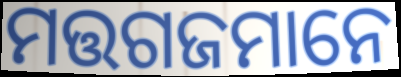
ମତ୍ତଗଜମାନେ